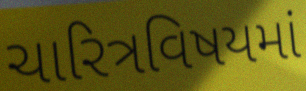
ચારિત્રવિષયમાં